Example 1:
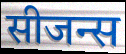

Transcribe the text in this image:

सीजन्स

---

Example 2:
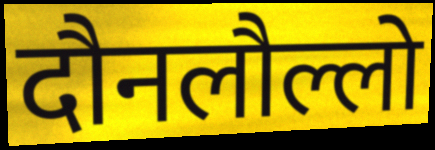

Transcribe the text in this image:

दौनलौल्लो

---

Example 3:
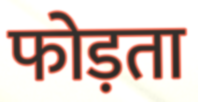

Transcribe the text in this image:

फोड़ता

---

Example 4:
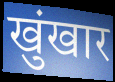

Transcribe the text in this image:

खुंखार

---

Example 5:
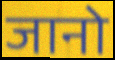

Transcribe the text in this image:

जानो